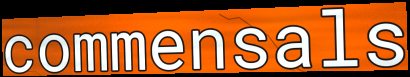
commensals